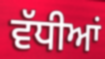
ਵੱਧੀਆਂ